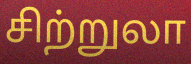
சிற்றுலா